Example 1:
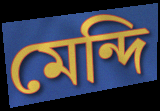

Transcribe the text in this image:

মেন্দি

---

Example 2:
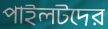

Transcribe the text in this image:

পাইলটদের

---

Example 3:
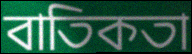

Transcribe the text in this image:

বাতিকতা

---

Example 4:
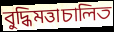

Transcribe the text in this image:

বুদ্ধিমত্তাচালিত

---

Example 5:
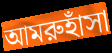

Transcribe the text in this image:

আমরুহাঁসা